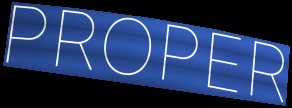
PROPER